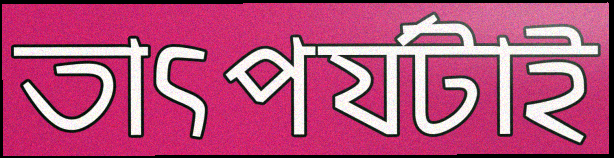
তাৎপর্যটাই